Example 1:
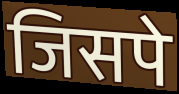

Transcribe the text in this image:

जिसपे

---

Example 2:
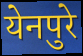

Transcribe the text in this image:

येनपुरे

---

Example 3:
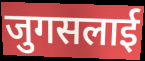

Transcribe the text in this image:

जुगसलाई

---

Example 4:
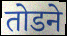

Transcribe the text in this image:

तोडने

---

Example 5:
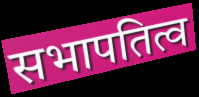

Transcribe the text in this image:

सभापतित्व